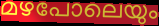
മഴപോലെയും